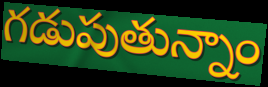
గడుపుతున్నాం